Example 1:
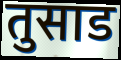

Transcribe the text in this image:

तुसाड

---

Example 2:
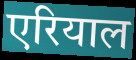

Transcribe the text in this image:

एरियाल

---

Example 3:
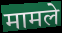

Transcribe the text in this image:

मामले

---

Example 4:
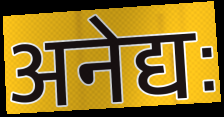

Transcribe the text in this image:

अनेद्यः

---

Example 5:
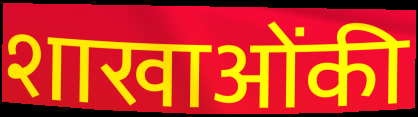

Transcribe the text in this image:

शाखाओंकी